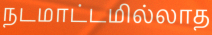
நடமாட்டமில்லாத